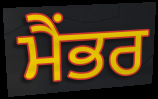
ਮੈਂਭਰ